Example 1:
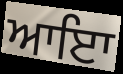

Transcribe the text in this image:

ਆਇਾ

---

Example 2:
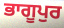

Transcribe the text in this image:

ਭਾਗੂਪੁਰ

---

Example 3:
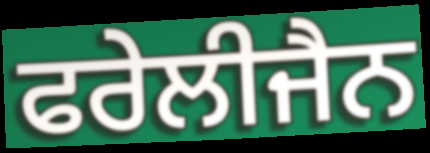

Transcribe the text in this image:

ਫਰੇਲੀਜੈਨ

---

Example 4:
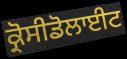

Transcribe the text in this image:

ਕ੍ਰੋਸੀਡੋਲਾਈਟ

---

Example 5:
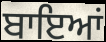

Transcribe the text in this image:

ਬਾਇਆਂ